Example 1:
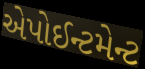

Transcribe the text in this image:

એપોઈન્ટમેન્ટ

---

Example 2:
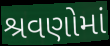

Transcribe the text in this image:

શ્રવણોમાં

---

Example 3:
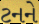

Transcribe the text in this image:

ટનને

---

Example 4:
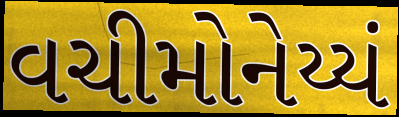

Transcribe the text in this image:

વચીમોનેય્યં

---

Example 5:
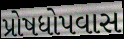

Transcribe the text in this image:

પ્રોષધોપવાસ